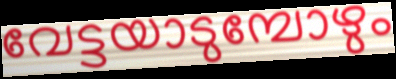
വേട്ടയാടുമ്പോഴും